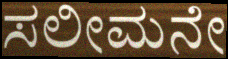
ಸಲೀಮನೇ